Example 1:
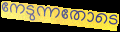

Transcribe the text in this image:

നേടുന്നതോടെ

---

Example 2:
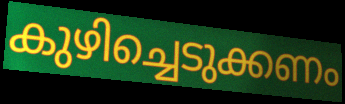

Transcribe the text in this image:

കുഴിച്ചെടുക്കണം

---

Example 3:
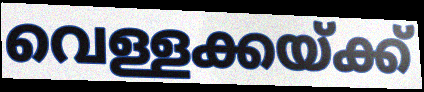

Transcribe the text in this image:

വെള്ളക്കയ്ക്ക്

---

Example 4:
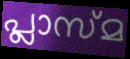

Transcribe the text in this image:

പ്ലാസ്മ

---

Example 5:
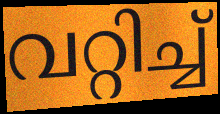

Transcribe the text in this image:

വറ്റിച്ച്